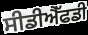
ਸੀਡੀਐੱਫਡੀ